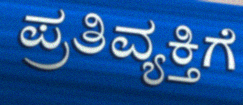
ಪ್ರತಿವ್ಯಕ್ತಿಗೆ